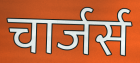
चार्जर्स